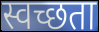
स्वच्छता